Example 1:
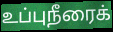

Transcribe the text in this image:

உப்புநீரைக்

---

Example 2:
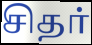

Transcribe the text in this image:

சிதர்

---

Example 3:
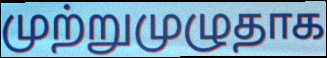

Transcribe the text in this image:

முற்றுமுழுதாக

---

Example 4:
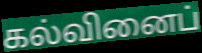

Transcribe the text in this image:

கல்வினைப்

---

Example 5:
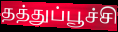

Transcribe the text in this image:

தத்துப்பூச்சி